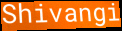
Shivangi